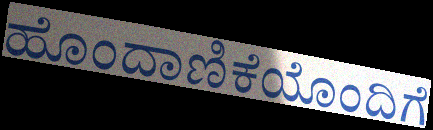
ಹೊಂದಾಣಿಕೆಯೊಂದಿಗೆ